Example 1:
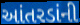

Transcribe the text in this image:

આંતરડાંની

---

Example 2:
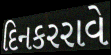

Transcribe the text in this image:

દિનકરરાવે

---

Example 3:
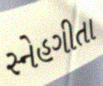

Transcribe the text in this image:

સ્નેહગીતા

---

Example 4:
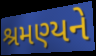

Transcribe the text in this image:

શ્રમણ્યને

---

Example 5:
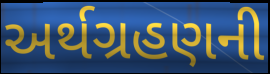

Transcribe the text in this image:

અર્થગ્રહણની